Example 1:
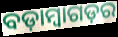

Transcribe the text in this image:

ବଡ଼ାମ୍ବାଗଡ଼ର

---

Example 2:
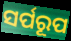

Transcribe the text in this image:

ସର୍ପରୂପ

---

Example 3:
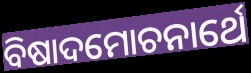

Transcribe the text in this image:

ବିଷାଦମୋଚନାର୍ଥେ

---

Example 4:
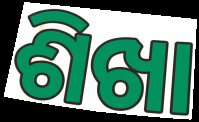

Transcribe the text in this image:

ଶିଖା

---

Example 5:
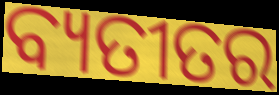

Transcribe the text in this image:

ବ୍ୟତୀତର